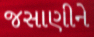
જસાણીને